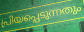
പ്രിയപ്പെടുന്നതും